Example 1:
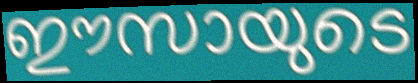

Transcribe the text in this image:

ഈസായുടെ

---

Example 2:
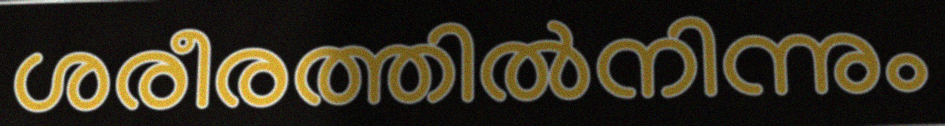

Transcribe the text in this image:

ശരീരത്തിൽനിന്നും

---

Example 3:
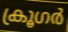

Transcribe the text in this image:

ക്രൂഗർ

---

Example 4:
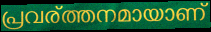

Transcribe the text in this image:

പ്രവര്ത്തനമായാണ്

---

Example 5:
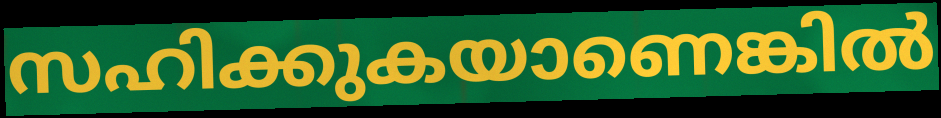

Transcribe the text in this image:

സഹിക്കുകയാണെങ്കിൽ